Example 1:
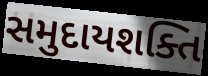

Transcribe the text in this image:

સમુદાયશક્તિ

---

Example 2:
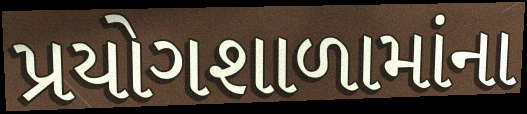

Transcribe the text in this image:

પ્રયોગશાળામાંના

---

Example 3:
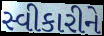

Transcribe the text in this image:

સ્વીકારીને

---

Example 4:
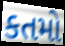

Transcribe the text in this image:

કતમો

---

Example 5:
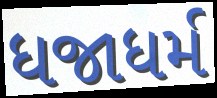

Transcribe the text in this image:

ધજાધર્મ